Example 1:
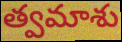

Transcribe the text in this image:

త్వమాశు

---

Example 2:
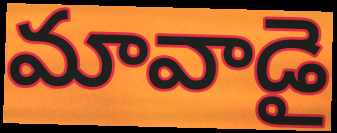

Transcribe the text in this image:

మావాడై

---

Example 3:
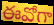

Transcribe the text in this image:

ఈవోగా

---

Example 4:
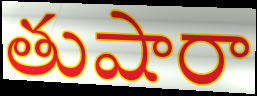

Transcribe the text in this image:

తుషారా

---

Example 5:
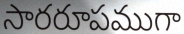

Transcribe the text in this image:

సారరూపముగా